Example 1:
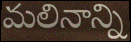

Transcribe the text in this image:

మలినాన్ని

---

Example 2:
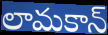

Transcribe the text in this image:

లామకాన్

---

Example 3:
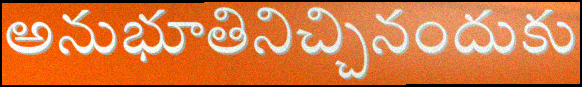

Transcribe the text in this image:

అనుభూతినిచ్చినందుకు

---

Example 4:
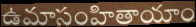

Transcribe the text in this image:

ఉమాసంహితాయాం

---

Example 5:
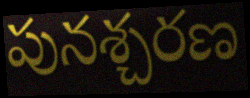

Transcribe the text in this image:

పునశ్చరణ